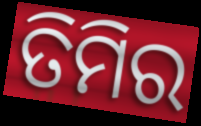
ତିମିର